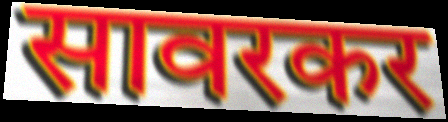
सावरकर